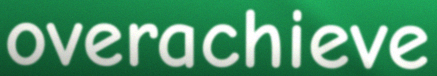
overachieve